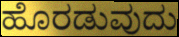
ಹೊರಡುವುದು